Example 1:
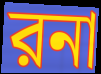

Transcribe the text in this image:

রনা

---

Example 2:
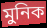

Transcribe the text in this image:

মুনিক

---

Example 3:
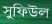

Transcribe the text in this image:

সুফিউল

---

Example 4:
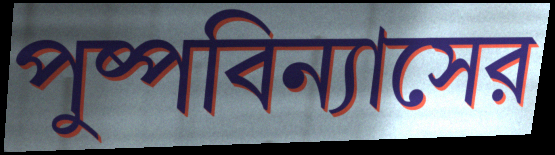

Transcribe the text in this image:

পুষ্পবিন্যাসের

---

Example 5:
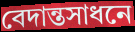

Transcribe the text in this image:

বেদান্তসাধনে